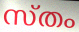
സ്‌തം